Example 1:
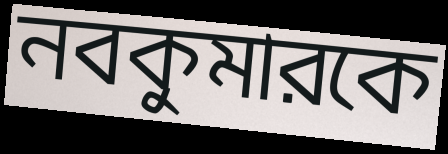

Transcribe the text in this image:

নবকুমারকে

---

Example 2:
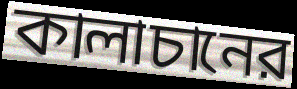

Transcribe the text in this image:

কালাচানের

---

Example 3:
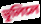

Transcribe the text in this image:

ভুলিলে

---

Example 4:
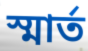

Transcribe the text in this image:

স্মার্ত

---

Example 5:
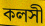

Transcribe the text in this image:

কলসী